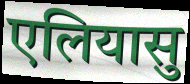
एलियासु